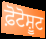
ਫ਼ੋਟੋਸ਼ੂਟ